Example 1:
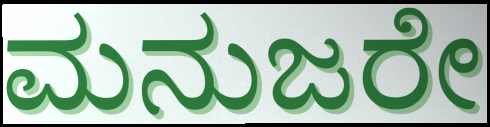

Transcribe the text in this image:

ಮನುಜರೇ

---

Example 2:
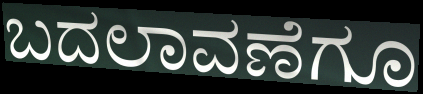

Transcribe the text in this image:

ಬದಲಾವಣೆಗೂ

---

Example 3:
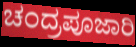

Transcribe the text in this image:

ಚಂದ್ರಪೂಜಾರಿ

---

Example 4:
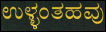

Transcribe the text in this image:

ಉಳ್ಳಂತಹವು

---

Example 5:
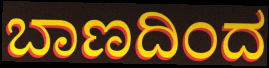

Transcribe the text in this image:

ಬಾಣದಿಂದ